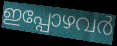
ഇപ്പോഴവർ